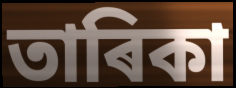
তাৰিকা